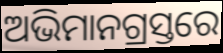
ଅଭିମାନଗ୍ରସ୍ତରେ